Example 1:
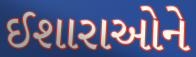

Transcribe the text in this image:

ઈશારાઓને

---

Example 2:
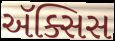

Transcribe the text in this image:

ઍક્સિસ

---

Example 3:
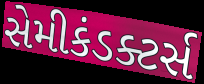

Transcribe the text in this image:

સેમીકંડક્ટર્સ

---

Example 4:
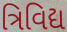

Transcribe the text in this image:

ત્રિવિદ્ય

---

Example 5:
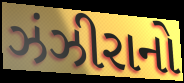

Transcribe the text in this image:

ઝંઝીરાનો